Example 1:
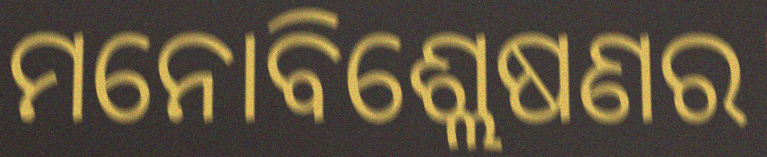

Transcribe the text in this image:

ମନୋବିଶ୍ଲେଷଣର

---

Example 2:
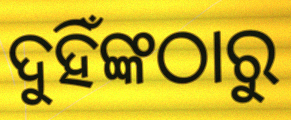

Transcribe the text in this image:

ଦୁହିଁଙ୍କଠାରୁ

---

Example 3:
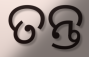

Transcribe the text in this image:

ତନ୍ତ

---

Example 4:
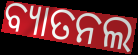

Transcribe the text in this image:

ବ୍ୟାତନଲ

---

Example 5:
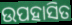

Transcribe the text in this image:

ଉପହାସିତ